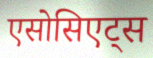
एसोसिएट्स